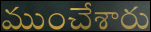
ముంచేశారు